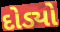
દોડ્યો